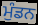
ਮੁੰਡਨ